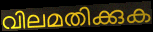
വിലമതിക്കുക